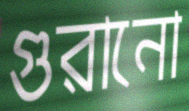
গুৱানো